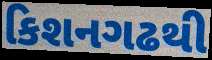
કિશનગઢથી